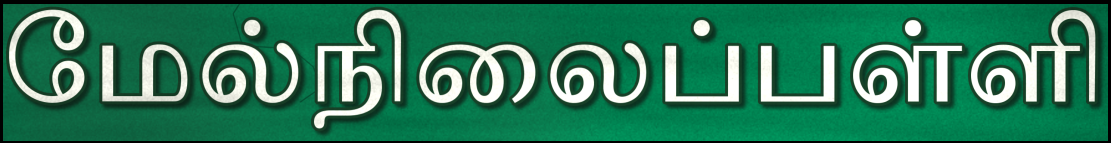
மேல்நிலைப்பள்ளி